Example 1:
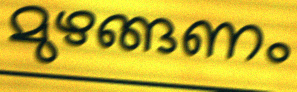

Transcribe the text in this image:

മുഴങ്ങണം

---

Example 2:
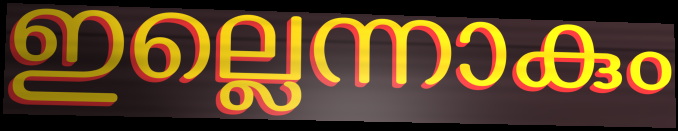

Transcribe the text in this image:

ഇല്ലെന്നാകും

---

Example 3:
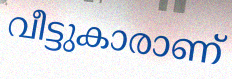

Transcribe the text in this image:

വീട്ടുകാരാണ്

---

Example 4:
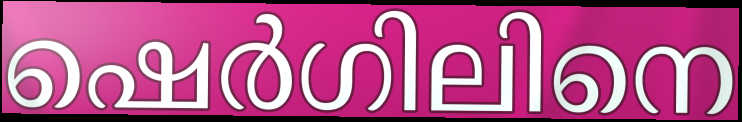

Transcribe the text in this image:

ഷെർഗിലിനെ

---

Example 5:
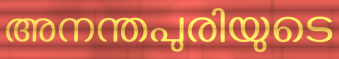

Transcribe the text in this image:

അനന്തപുരിയുടെ